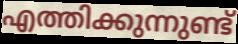
എത്തിക്കുന്നുണ്ട്